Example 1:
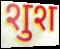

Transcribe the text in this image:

शुश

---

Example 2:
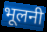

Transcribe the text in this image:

भूलनी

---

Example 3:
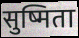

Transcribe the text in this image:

सुष्मिता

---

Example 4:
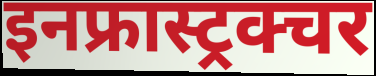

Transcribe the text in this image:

इनफ्रास्ट्रक्चर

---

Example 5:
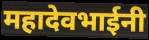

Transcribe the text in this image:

महादेवभाईनी